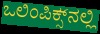
ಒಲಿಂಪಿಕ್ಸ್‌ನಲ್ಲಿ